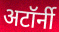
अटॉर्नी